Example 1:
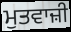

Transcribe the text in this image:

ਮੁਤਵਾਜ਼ੀ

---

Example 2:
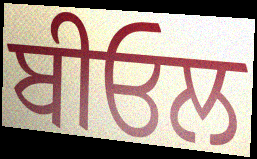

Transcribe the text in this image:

ਬੀਓਲ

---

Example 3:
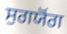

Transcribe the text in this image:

ਸੁਗਯੋਂਗ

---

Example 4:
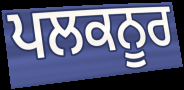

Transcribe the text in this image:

ਪਲਕਨੂਰ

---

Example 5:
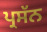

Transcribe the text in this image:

ਪ੍ਰਸੱਨ